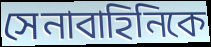
সেনাবাহিনিকে